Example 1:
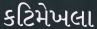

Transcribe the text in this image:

કટિમેખલા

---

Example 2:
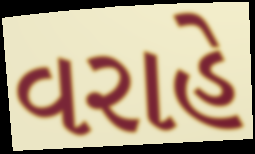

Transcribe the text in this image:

વરાહે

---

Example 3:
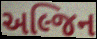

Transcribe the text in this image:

અલ્જિન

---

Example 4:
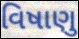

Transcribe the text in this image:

વિષાણુ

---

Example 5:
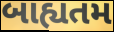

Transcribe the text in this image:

બાહ્યતમ